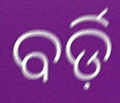
ବର୍ଡ଼ି